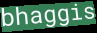
bhaggis